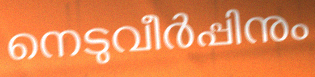
നെടുവീർപ്പിനും